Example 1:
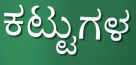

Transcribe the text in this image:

ಕಟ್ಟುಗಳ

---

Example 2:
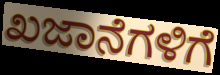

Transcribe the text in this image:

ಖಜಾನೆಗಳಿಗೆ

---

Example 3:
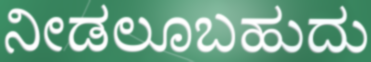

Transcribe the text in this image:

ನೀಡಲೂಬಹುದು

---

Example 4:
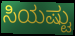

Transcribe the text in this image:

ಸಿಯಷ್ಟು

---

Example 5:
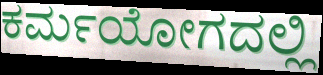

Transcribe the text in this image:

ಕರ್ಮಯೋಗದಲ್ಲಿ